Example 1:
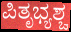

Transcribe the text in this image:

ಪಿತೃಭ್ಯಶ್ಚ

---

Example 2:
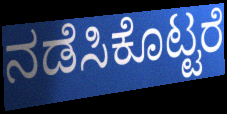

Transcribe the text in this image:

ನಡೆಸಿಕೊಟ್ಟರೆ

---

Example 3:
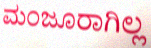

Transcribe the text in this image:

ಮಂಜೂರಾಗಿಲ್ಲ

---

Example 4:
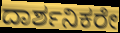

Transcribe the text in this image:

ದಾರ್ಶನಿಕರೇ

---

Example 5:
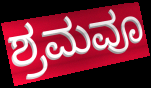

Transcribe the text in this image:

ಶ್ರಮವೂ